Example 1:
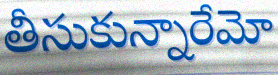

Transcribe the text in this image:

తీసుకున్నారేమో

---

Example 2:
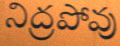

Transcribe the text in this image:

నిద్రపోవు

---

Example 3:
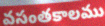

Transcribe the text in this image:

వసంతకాలము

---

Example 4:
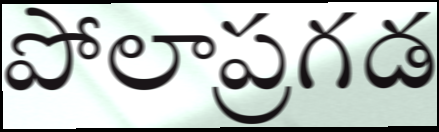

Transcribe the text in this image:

పోలాప్రగడ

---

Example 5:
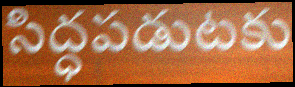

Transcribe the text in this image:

సిద్ధపడుటకు